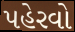
પહેરવો